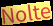
Nolte